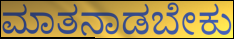
ಮಾತನಾಡಬೇಕು